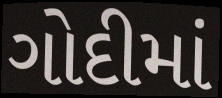
ગોદીમાં